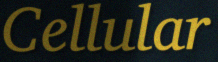
Cellular